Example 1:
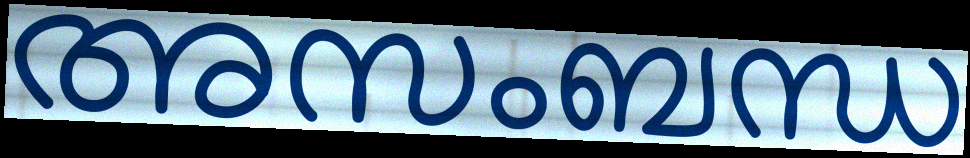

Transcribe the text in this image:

അസംബന്ധ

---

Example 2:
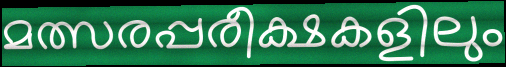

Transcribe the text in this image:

മത്സരപ്പരീക്ഷകളിലും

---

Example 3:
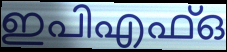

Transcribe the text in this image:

ഇപിഎഫ്ഒ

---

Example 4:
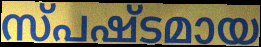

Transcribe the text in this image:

സ്പഷ്ടമായ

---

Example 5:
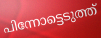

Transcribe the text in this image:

പിന്നോട്ടെടുത്ത്